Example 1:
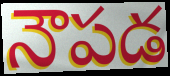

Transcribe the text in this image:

నౌపడ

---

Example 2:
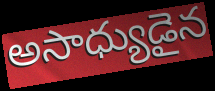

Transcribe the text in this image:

అసాధ్యుడైన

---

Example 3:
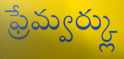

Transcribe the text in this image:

ఫ్రేమ్వర్క్లు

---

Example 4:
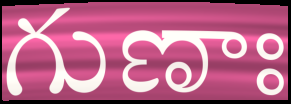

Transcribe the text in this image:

గుణాః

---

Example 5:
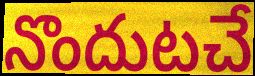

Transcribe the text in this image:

నొందుటచే